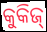
କୁକିଜ୍